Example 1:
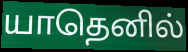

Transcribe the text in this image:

யாதெனில்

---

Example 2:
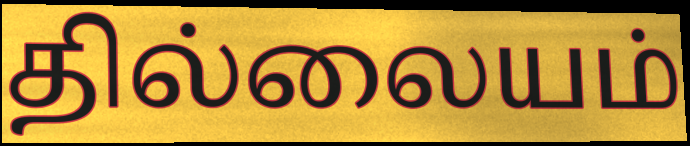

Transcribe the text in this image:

தில்லையம்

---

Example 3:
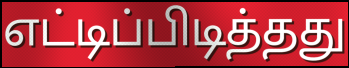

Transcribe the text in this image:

எட்டிப்பிடித்தது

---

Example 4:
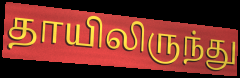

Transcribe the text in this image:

தாயிலிருந்து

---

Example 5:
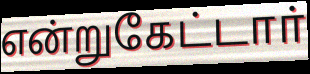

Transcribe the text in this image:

என்றுகேட்டார்